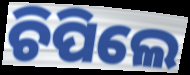
ଚିପିଲେ